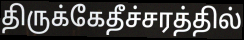
திருக்கேதீச்சரத்தில்